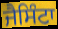
ਜੈਸਿੰਟਾ